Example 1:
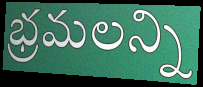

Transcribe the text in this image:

భ్రమలన్ని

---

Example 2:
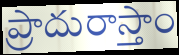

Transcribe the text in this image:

ప్రాదురాస్తాం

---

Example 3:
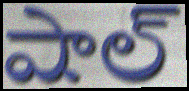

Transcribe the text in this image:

షాల్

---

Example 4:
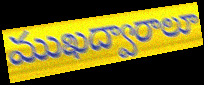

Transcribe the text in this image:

ముఖద్వారాలూ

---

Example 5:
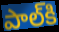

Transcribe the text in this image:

పాల్‌కి